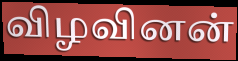
விழவினன்